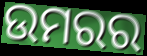
ଉମରର